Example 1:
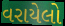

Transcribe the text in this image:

વરાયેલો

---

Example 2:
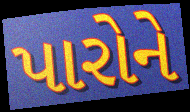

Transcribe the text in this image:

પારોને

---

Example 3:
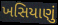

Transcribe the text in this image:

ખસિયાણું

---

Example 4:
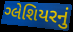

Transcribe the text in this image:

ગ્લેશિયરનું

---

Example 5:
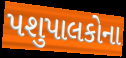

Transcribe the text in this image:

પશુપાલકોના